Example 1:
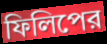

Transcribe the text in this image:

ফিলিপের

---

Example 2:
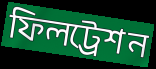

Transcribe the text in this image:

ফিলট্রেশন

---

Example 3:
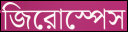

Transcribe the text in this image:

জিরোস্পেস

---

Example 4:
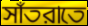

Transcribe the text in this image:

সাঁতরাতে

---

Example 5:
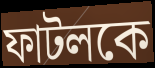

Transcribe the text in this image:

ফাটলকে